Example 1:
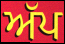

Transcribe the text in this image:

ਅੱਪ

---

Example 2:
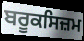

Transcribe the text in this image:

ਬਰੂਕਸਿਜ਼ਮ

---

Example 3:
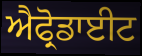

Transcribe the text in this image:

ਐਫ੍ਰੋਡਾਈਟ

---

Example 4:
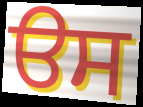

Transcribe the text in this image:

ੳਸ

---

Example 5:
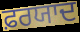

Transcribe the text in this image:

ਫ਼ਰਯਾਦ